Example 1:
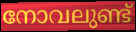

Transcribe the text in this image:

നോവലുണ്ട്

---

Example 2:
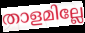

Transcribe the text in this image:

താളമില്ലേ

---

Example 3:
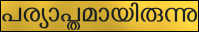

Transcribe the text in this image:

പര്യാപ്തമായിരുന്നു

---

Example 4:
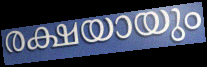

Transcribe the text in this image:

രക്ഷയായും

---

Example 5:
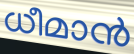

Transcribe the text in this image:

ധീമാൻ